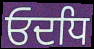
ਓਦਧਿ